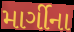
માર્ગીના